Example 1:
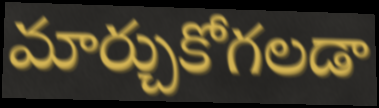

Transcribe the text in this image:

మార్చుకోగలడా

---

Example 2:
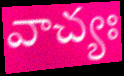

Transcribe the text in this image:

వాచ్యః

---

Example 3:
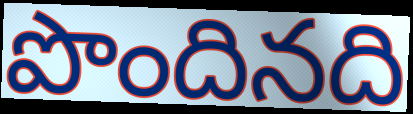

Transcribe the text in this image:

పొందినది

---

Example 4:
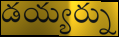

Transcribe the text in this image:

డయ్యర్ను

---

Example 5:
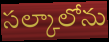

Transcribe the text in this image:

సల్కాలోను